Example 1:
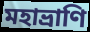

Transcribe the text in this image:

মহাভ্রাণি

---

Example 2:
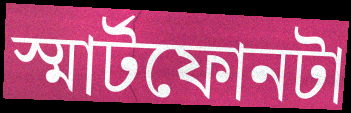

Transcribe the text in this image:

স্মার্টফোনটা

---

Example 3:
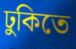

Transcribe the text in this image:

ঢুকিতে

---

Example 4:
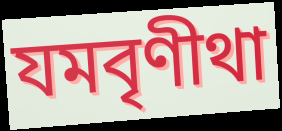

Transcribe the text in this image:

যমবৃণীথা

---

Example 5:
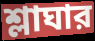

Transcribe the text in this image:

শ্লাঘার